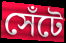
সেঁটে